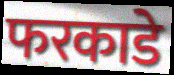
फरकाडे